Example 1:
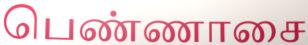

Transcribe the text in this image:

பெண்ணாசை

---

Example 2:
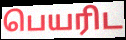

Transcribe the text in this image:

பெயரிட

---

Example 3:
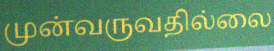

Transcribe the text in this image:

முன்வருவதில்லை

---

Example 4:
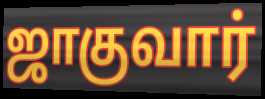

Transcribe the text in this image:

ஜாகுவார்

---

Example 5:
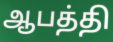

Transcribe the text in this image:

ஆபத்தி